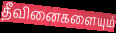
தீவினைகளையும்